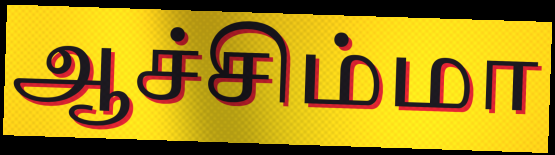
ஆச்சிம்மா